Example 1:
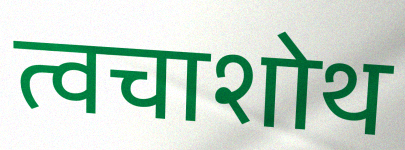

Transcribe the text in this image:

त्वचाशोथ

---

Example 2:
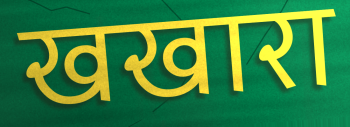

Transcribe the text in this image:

खखारा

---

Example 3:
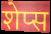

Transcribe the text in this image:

शेप्स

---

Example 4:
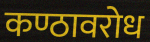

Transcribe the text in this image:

कण्ठावरोध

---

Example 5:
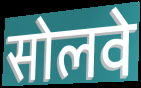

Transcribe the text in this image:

सोलवे